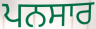
ਪਨਸਾਰ